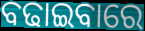
ବଢାଇବାରେ